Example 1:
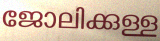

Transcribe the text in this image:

ജോലിക്കുള്ള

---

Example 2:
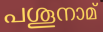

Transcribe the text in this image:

പശൂനാമ്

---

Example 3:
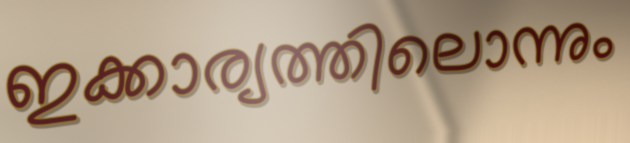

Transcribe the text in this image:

ഇക്കാര്യത്തിലൊന്നും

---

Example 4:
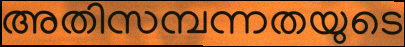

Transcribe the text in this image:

അതിസമ്പന്നതയുടെ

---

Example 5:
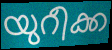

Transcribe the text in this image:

യുറീക്ക